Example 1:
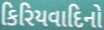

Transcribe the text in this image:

કિરિયવાદિનો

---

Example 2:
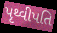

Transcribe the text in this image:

પૃથ્વીપતિ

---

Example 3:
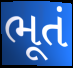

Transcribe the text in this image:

ભૂતં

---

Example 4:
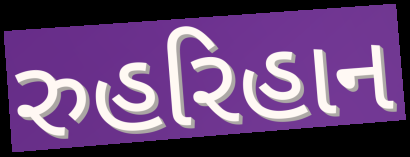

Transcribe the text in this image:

રુહરિહાન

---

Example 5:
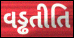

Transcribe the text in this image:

વડ્ઢતીતિ